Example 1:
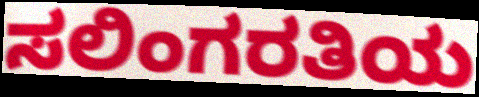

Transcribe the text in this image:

ಸಲಿಂಗರತಿಯ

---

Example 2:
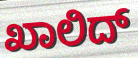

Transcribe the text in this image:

ಖಾಲಿದ್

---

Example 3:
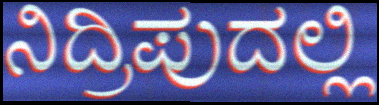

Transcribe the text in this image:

ನಿದ್ರಿಪುದಲ್ಲಿ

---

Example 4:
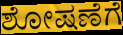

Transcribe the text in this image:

ಶೋಷಣೆಗೆ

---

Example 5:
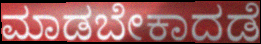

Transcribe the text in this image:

ಮಾಡಬೇಕಾದಡೆ